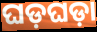
ଘଡ଼ଘଡ଼ା